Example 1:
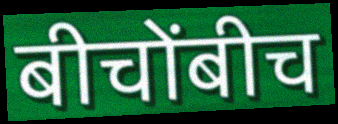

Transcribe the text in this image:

बीचोंबीच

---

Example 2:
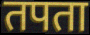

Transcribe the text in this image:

तपता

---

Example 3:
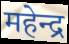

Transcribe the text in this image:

महेन्‍द्र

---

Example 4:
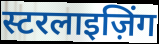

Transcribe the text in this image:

स्टरलाइज़िंग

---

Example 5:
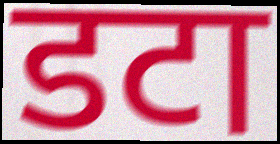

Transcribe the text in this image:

डटा